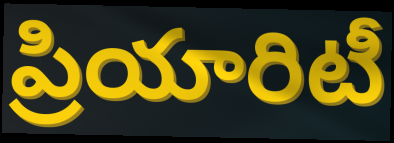
ప్రియారిటీ